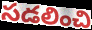
సడలించి